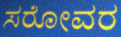
ಸರೋವರ